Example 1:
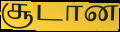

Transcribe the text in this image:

சூடான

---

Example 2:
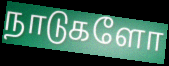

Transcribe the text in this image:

நாடுகளோ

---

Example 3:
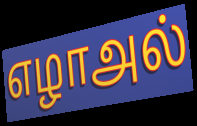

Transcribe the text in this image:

எழாஅல்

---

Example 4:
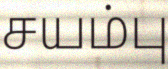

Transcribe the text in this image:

சயம்பு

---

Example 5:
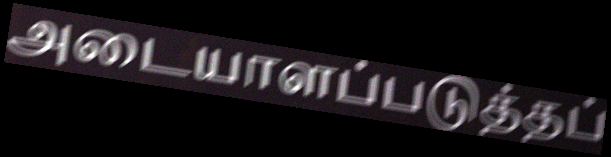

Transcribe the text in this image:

அடையாளப்படுத்தப்